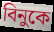
বিনুকে